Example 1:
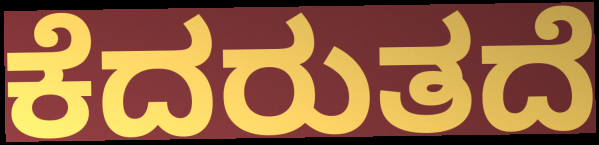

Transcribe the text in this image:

ಕೆದರುತದೆ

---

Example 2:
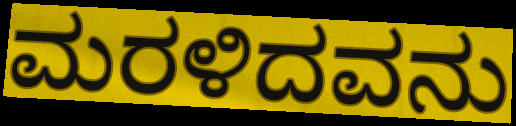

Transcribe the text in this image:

ಮರಳಿದವನು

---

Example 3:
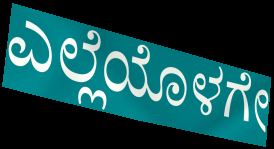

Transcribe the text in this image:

ಎಲ್ಲೆಯೊಳಗೇ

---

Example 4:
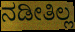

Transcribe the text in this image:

ನಡೀತಿಲ್ಲ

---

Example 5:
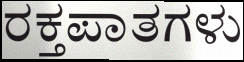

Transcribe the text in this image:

ರಕ್ತಪಾತಗಳು